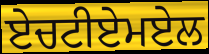
ਏਚਟੀਏਮਏਲ